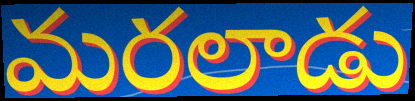
మరలాడు